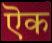
ऎक